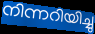
നിന്നറിയിച്ചു